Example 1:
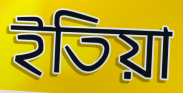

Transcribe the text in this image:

ইতিয়া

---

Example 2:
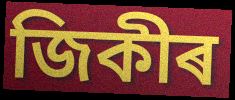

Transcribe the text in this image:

জিকীৰ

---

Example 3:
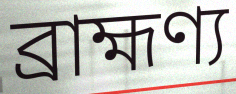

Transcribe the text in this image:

ব্ৰাহ্মণ্য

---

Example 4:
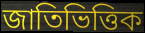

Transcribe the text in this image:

জাতিভিত্তিক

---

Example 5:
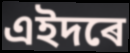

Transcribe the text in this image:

এইদৰে